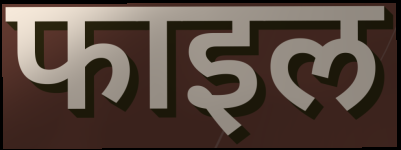
फाइल